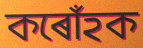
কৰোঁহক